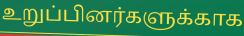
உறுப்பினர்களுக்காக